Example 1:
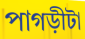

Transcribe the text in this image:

পাগড়ীটা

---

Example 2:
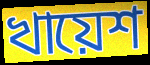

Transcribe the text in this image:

খায়েশ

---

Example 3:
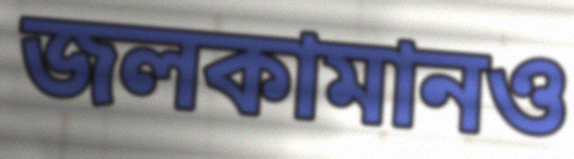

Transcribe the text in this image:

জলকামানও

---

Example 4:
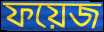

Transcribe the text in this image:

ফয়েজ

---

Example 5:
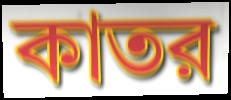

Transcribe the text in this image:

কাতর